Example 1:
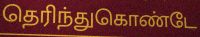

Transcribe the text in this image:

தெரிந்துகொண்டே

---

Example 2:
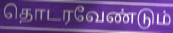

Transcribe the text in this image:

தொடரவேண்டும்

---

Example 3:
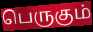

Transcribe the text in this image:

பெருகும்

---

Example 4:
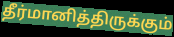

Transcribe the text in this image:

தீர்மானித்திருக்கும்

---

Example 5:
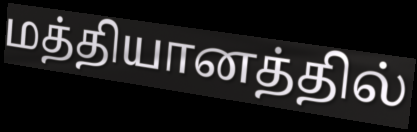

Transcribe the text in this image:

மத்தியானத்தில்